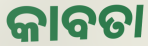
କାବତା